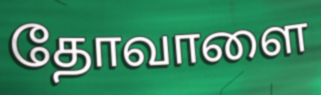
தோவாளை